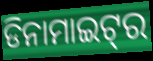
ଡିନାମାଇଟ୍‌ର